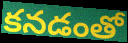
కనడంతో